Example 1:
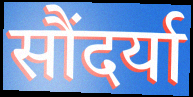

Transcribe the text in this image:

सौंदर्या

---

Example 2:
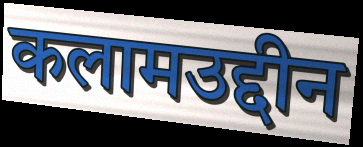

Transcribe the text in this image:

कलामउद्दीन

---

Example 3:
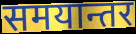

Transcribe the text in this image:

समयान्तर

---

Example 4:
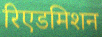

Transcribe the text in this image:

रिएडमिशन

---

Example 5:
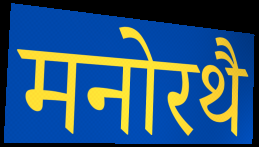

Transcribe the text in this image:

मनोरथै